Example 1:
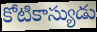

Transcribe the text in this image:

కోటికాస్యుడు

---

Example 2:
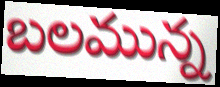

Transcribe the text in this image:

బలమున్న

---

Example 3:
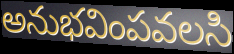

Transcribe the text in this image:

అనుభవింపవలసి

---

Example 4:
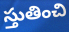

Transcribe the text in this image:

స్తుతించి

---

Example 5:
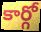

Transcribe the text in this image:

కార్గో